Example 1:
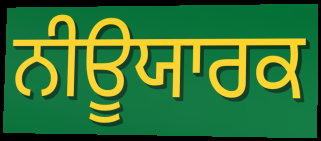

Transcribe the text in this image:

ਨੀਊਯਾਰਕ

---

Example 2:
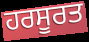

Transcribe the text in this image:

ਹਰਸੂਰਤ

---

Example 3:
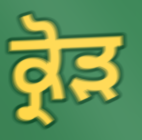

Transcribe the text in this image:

ਕ੍ਰੋੜ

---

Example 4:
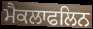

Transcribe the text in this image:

ਮੈਕਲਾਫਲਿਨ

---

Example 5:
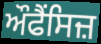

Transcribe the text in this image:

ਔਫੈਂਸਿਜ਼